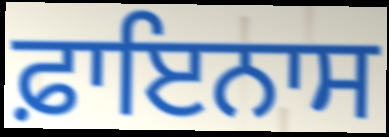
ਫ਼ਾਇਨਾਸ